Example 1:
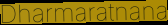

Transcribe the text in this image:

Dharmaratnana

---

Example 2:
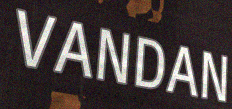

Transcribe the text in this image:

VANDAN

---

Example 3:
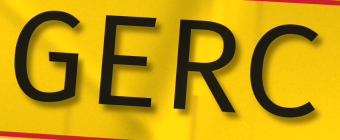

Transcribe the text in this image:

GERC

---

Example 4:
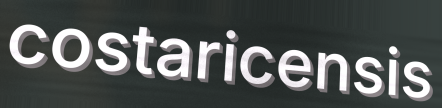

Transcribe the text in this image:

costaricensis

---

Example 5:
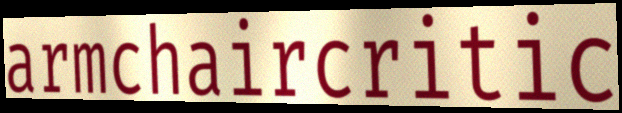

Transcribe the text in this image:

armchaircritic